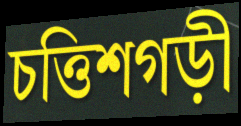
চত্তিশগড়ী